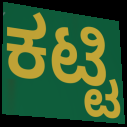
ಕಟ್ಟಿ